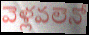
వెళ్లవలెనో